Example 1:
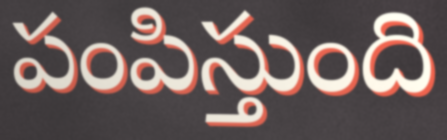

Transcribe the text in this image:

పంపిస్తుంది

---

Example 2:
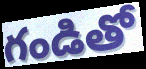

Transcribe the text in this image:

గండితో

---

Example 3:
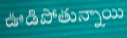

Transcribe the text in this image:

ఊడిపోతున్నాయి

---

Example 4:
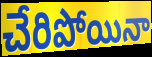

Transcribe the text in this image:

చేరిపోయినా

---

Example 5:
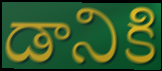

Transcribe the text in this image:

డానికి